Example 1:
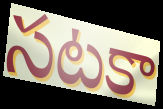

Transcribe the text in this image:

సటకా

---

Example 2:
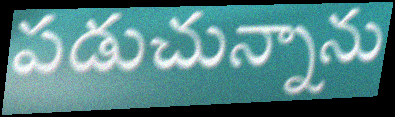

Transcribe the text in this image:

పడుచున్నాను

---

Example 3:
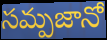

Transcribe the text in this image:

సమ్పజానో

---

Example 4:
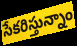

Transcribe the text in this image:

సేకరిస్తున్నాం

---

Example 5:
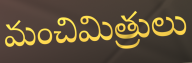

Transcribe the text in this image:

మంచిమిత్రులు